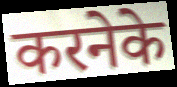
करनेके